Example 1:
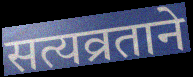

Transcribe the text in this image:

सत्यव्रताने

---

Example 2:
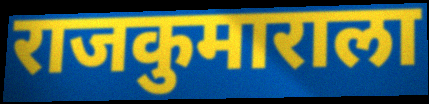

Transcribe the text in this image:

राजकुमाराला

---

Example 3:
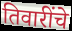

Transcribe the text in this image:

तिवारींचे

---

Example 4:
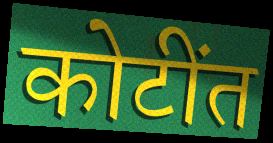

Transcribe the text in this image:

कोटींत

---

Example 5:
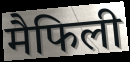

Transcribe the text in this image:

मैफिली